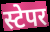
स्टेपर